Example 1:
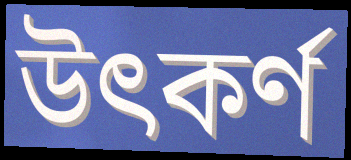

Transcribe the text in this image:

উৎকর্ণ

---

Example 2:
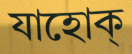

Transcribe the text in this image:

যাহোক্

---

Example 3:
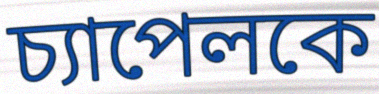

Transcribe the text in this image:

চ্যাপেলকে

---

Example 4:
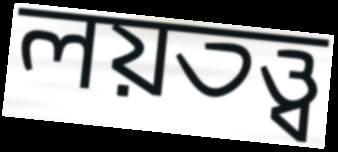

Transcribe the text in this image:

লয়তত্ত্ব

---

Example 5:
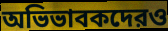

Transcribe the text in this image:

অভিভাবকদেরও